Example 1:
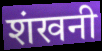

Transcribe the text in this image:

शंखनी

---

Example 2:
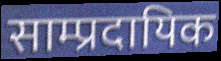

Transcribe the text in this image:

साम्प्रदायिक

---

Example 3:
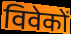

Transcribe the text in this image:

विवेकों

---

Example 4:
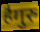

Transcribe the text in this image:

हैगुरु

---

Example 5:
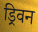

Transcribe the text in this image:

ड्रिवन